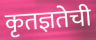
कृतज्ञतेची